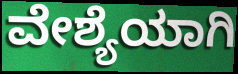
ವೇಶ್ಯೆಯಾಗಿ